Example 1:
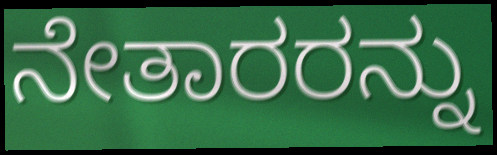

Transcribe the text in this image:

ನೇತಾರರನ್ನು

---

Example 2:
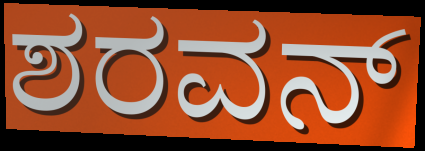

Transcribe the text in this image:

ಶರವನ್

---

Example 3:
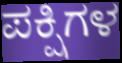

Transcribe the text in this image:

ಪಕ್ಷಿಗಳ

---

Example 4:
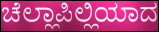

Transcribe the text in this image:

ಚೆಲ್ಲಾಪಿಲ್ಲಿಯಾದ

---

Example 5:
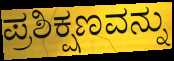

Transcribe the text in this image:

ಪ್ರಶಿಕ್ಷಣವನ್ನು